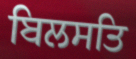
ਬਿਲਸਤਿ